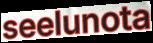
seelunota